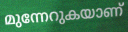
മുന്നേറുകയാണ്